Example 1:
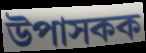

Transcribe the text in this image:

উপাসকক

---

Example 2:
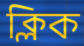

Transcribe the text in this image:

ক্লিক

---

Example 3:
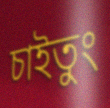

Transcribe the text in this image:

চাইতুং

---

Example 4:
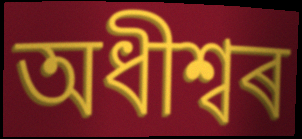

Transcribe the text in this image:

অধীশ্বৰ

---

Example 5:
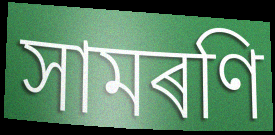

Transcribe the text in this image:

সামৰণি